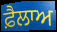
ਫ਼ੈਲਾਅ